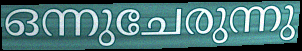
ഒന്നുചേരുന്നു